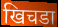
खिचडा